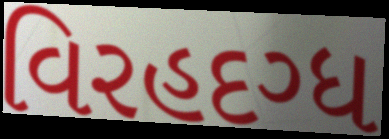
વિરહદગ્ધ